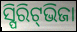
ସ୍ପିରିଟ୍‌ଭିଜା